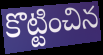
కొట్టించిన